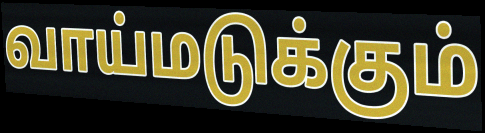
வாய்மடுக்கும்